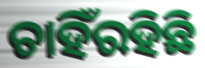
ଚାହିଁରହିଛି